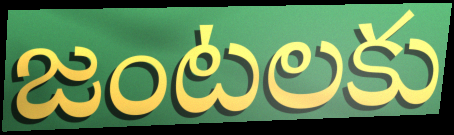
జంటలకు